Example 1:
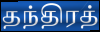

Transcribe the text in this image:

தந்திரத்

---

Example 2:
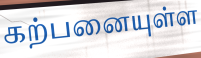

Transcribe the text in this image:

கற்பனையுள்ள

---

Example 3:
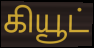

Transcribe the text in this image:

கியூட்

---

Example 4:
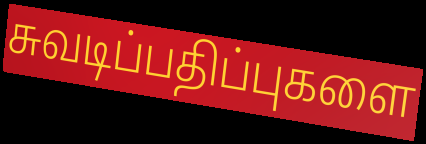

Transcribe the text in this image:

சுவடிப்பதிப்புகளை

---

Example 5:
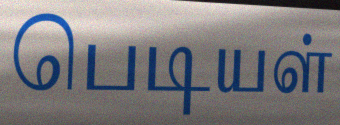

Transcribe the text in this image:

பெடியள்